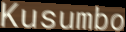
Kusumbo